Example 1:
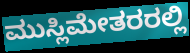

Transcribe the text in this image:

ಮುಸ್ಲಿಮೇತರರಲ್ಲಿ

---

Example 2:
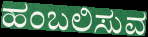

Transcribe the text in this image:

ಹಂಬಲಿಸುವ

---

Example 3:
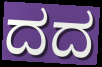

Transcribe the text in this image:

ದದ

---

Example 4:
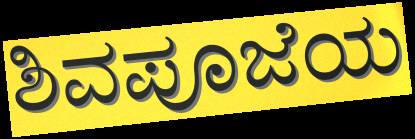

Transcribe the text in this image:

ಶಿವಪೂಜೆಯ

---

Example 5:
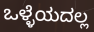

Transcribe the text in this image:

ಒಳ್ಳೆಯದಲ್ಲ